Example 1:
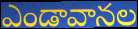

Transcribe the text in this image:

ఎండావానల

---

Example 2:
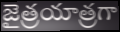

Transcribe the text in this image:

జైత్రయాత్రగా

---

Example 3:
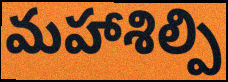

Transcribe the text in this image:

మహాశిల్పి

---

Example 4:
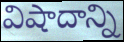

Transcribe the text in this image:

విషాదాన్ని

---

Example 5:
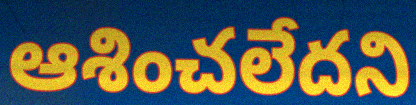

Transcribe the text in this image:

ఆశించలేదని